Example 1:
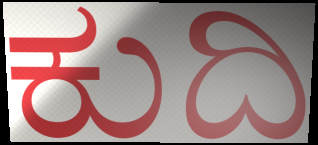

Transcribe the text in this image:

ಕುದಿ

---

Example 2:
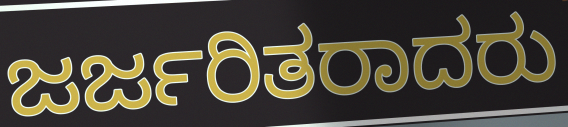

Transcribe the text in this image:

ಜರ್ಜರಿತರಾದರು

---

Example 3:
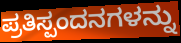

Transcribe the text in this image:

ಪ್ರತಿಸ್ಪಂದನಗಳನ್ನು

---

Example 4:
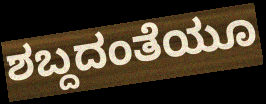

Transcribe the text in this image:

ಶಬ್ದದಂತೆಯೂ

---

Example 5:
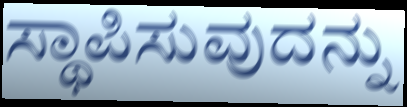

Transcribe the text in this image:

ಸ್ಥಾಪಿಸುವುದನ್ನು